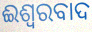
ଈଶ୍ୱରବାଦ